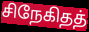
சிநேகிதத்